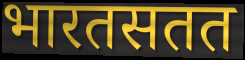
भारतसतत